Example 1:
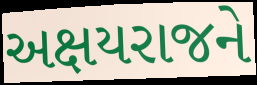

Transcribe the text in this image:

અક્ષયરાજને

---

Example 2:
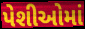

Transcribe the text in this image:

પેશીઓમાં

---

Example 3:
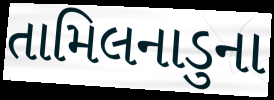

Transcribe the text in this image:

તામિલનાડુના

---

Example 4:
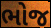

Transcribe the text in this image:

ભોજ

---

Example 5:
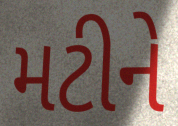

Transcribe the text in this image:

મટીને